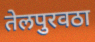
तेलपुरवठा